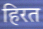
हिरत